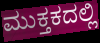
ಮುಕ್ತಕದಲ್ಲಿ